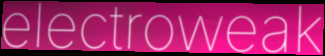
electroweak